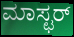
ಮಾಸ್ಟರ್